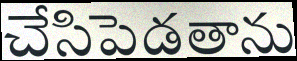
చేసిపెడతాను